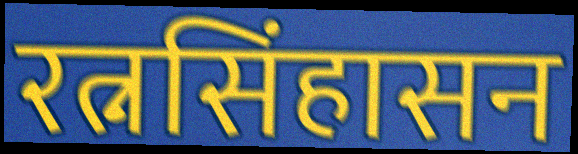
रत्नसिंहासन